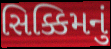
સિક્કિમનું